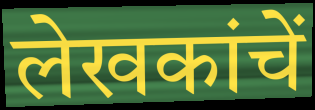
लेखकांचें